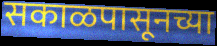
सकाळपासूनच्या